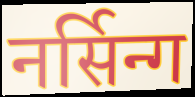
नर्सिन्ग